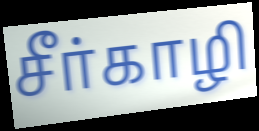
சீர்காழி